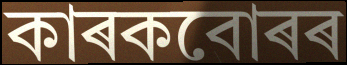
কাৰকবোৰৰ